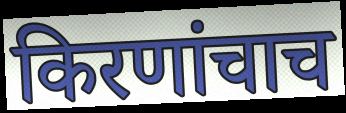
किरणांचाच